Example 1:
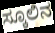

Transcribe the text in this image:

ಸ್ಕೂಲಿನ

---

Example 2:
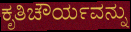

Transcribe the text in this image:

ಕೃತಿಚೌರ್ಯವನ್ನು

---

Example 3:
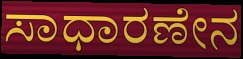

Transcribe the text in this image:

ಸಾಧಾರಣೇನ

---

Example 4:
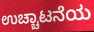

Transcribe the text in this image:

ಉಚ್ಚಾಟನೆಯ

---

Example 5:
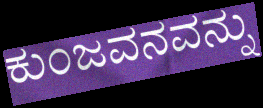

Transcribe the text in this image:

ಕುಂಜವನವನ್ನು